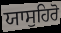
ਯਾਸੁਹਿਰੋ